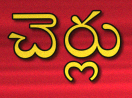
చెర్లు